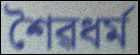
শৈৱধৰ্ম